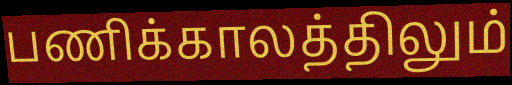
பணிக்காலத்திலும்